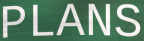
PLANS